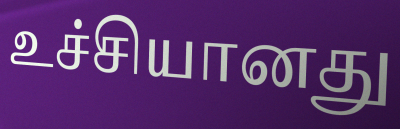
உச்சியானது